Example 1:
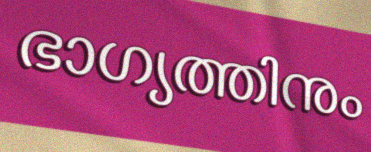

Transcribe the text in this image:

ഭാഗ്യത്തിനും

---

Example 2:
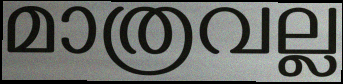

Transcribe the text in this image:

മാത്രവല്ല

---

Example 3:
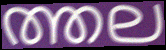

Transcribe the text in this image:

ത്തല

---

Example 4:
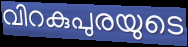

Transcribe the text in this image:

വിറകുപുരയുടെ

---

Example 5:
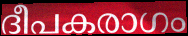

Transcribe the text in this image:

ദീപകരാഗം